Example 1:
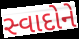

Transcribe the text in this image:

સ્વાદોને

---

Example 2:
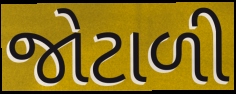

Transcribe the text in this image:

જોટાળી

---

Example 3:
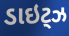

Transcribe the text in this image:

ડાઇટ્ઝ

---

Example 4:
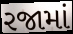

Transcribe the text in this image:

રજામાં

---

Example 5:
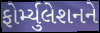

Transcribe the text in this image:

ફોર્મ્યુલેશનને